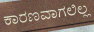
ಕಾರಣವಾಗಲಿಲ್ಲ